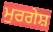
ਮੁਰਗੇਸ਼